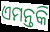
ଏମନ୍ତକି